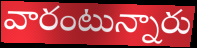
వారంటున్నారు